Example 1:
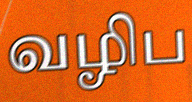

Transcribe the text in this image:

வழிப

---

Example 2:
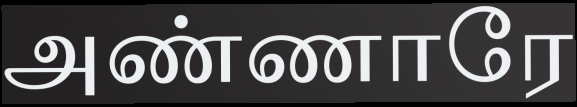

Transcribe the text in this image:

அண்ணாரே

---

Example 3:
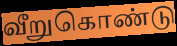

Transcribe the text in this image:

வீறுகொண்டு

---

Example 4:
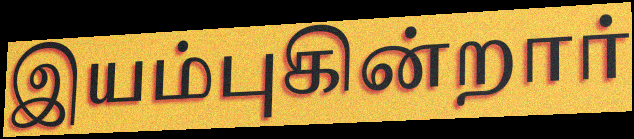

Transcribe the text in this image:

இயம்புகின்றார்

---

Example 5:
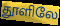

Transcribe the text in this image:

தூளிலே